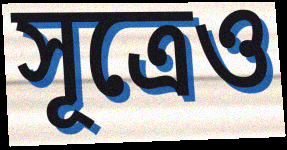
সূত্রেও